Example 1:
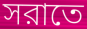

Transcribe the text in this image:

সরাতে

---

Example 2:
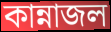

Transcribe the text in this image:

কান্নাজল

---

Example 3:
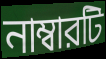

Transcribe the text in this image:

নাম্বারটি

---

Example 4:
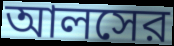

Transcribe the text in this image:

আলসের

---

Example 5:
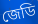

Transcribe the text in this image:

জেডি